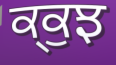
ਕ੍ਕੁਝ